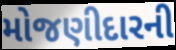
મોજણીદારની